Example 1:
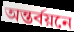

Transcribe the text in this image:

অন্তর্বয়নে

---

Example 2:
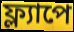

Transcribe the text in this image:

ফ্ল্যাপে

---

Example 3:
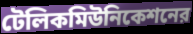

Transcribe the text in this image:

টেলিকমিউনিকেশনের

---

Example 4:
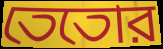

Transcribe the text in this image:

তেতোর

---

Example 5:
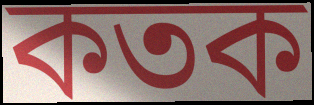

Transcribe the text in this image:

কতক